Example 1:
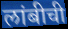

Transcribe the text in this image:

लांबीची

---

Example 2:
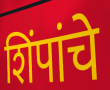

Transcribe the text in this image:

शिंपांचे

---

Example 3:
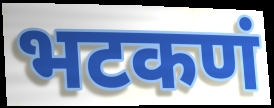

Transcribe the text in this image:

भटकणं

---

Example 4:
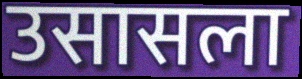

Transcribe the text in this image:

उसासला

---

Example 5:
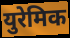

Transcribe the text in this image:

युरेमिक